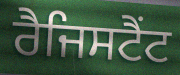
ਰੈਜਿਸਟੈਂਟ